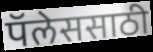
पॅलेससाठी